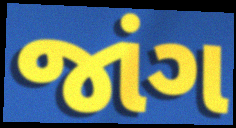
જાંગ